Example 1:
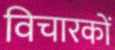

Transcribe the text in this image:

विचारकों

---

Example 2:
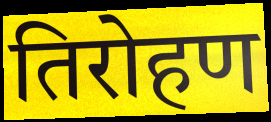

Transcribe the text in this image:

तिरोहण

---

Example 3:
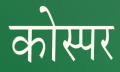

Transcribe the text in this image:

कोस्पर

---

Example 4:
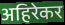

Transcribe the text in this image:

अहिरेकर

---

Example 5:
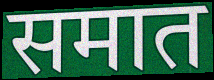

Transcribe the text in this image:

समात